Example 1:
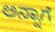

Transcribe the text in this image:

ಅನ್ನಾಗೆ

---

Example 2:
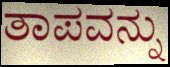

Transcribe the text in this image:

ತಾಪವನ್ನು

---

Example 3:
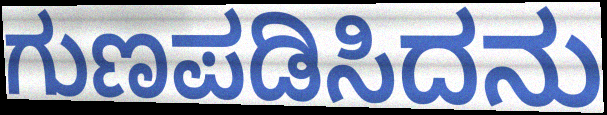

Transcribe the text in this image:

ಗುಣಪಡಿಸಿದನು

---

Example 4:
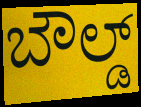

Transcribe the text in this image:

ಬೌಲ್ಡ್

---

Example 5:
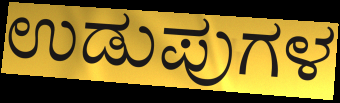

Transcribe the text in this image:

ಉಡುಪುಗಳ